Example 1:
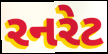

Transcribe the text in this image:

રનરેટ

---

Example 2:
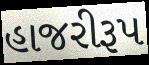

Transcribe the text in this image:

હાજરીરૂપ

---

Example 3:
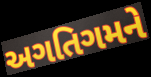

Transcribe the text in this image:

અગતિગમને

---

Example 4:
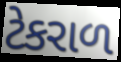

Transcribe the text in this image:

ટેકરાળ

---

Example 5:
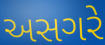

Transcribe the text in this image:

અસગરે